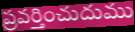
ప్రవర్తించుదుము